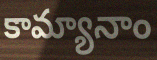
కామ్యానాం